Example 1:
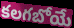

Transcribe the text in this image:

కలగబోయే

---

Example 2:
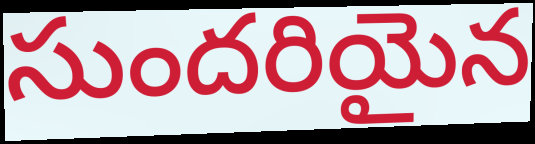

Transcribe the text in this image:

సుందరియైన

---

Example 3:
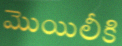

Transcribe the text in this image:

మొయిలీకి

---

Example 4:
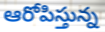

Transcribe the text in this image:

ఆరోపిస్తున్న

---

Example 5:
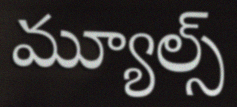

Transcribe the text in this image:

మ్యూల్స్